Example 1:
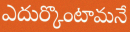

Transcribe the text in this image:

ఎదుర్కొంటామనే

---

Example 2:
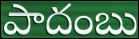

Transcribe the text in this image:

పాదంబు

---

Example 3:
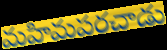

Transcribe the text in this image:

మహిమపరచాడు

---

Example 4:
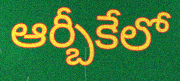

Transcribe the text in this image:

ఆర్బీకేలో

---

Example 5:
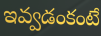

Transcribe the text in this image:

ఇవ్వడంకంటే